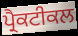
ਪ੍ਰੈਕਟੀਕਲ